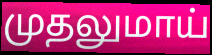
முதலுமாய்